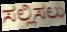
ಸಲ್ಲಿಸಲು